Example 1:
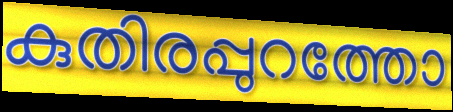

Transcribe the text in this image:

കുതിരപ്പുറത്തോ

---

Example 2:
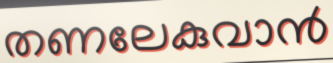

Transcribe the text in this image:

തണലേകുവാൻ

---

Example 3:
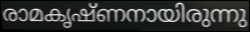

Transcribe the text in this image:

രാമകൃഷ്ണനായിരുന്നു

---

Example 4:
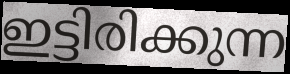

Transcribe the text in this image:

ഇട്ടിരിക്കുന്ന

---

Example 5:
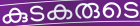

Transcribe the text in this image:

കുടകരുടെ